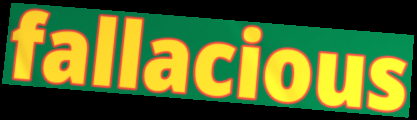
fallacious